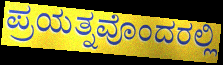
ಪ್ರಯತ್ನವೊಂದರಲ್ಲಿ